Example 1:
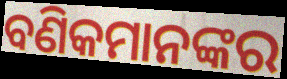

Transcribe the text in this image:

ବଣିକମାନଙ୍କର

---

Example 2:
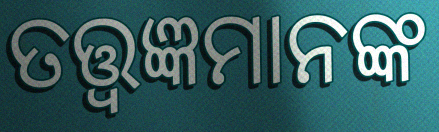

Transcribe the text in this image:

ତତ୍ତ୍ୱଜ୍ଞମାନଙ୍କ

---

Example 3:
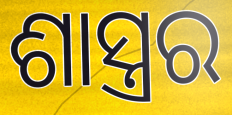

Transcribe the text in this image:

ଶାସ୍ତ୍ରର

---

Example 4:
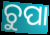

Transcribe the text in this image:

ଚୁପା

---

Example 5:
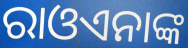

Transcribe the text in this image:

ରାଓଏନାଙ୍କ